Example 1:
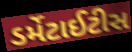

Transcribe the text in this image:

ડર્મેટાઈટીસ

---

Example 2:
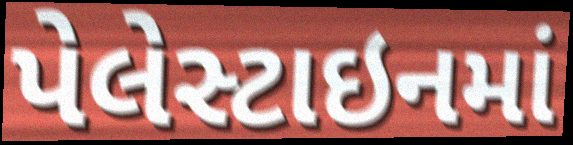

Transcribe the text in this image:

પેલેસ્ટાઇનમાં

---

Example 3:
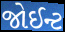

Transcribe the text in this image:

જોઈન્ટ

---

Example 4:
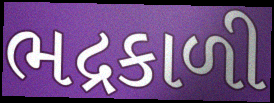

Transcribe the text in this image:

ભદ્રકાળી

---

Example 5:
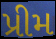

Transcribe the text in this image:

પ્રીમ